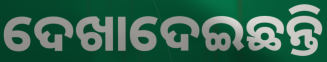
ଦେଖାଦେଇଛନ୍ତି